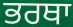
ਭਰਥਾ